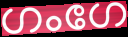
ഗംഗേ